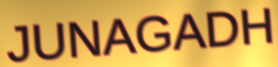
JUNAGADH